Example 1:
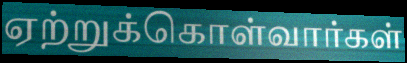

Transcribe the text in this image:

ஏற்றுக்கொள்வார்கள்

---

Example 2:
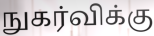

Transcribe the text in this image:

நுகர்விக்கு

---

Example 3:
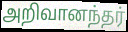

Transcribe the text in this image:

அறிவானந்தர்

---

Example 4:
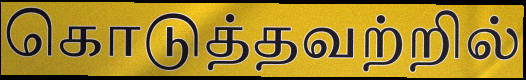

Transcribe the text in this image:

கொடுத்தவற்றில்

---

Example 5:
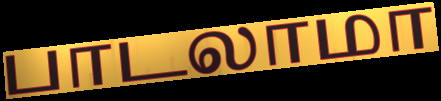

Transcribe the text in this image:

பாடலாமா